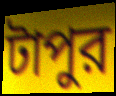
টাপুর